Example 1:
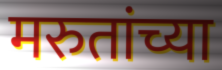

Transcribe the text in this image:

मरुतांच्या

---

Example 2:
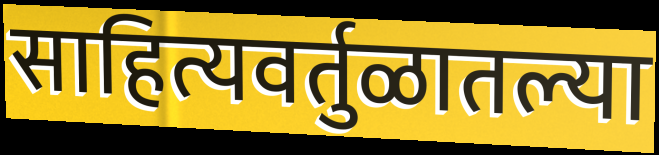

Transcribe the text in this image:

साहित्यवर्तुळातल्या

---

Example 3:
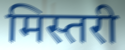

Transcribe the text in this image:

मिस्तरी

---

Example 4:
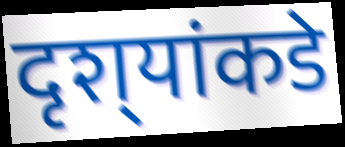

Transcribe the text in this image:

दृश्यांकडे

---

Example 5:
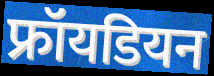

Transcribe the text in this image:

फ्रॉयडियन